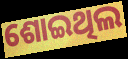
ଶୋଇଥିଲ